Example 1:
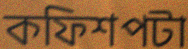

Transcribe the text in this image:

কফিশপটা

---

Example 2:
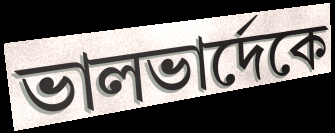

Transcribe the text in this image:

ভালভার্দেকে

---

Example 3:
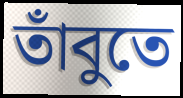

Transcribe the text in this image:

তাঁবুতে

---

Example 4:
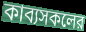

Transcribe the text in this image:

কাব্যসকলের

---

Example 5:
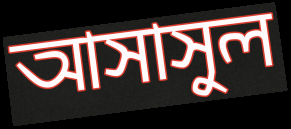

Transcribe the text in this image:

আসাসুল